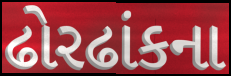
ઢોરઢાંકના